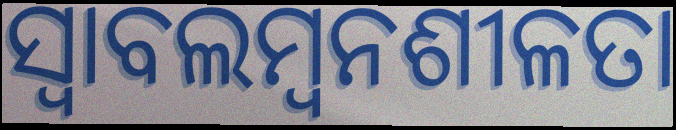
ସ୍ୱାବଲମ୍ବନଶୀଳତା